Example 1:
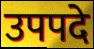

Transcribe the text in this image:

उपपदे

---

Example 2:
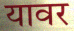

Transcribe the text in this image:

यावर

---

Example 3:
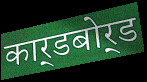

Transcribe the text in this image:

कार्डबोर्ड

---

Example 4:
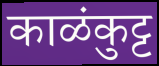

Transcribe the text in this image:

काळंकुट्ट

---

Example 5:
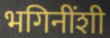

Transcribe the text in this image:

भगिनींशी